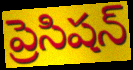
ప్రెసిషన్